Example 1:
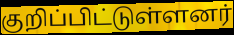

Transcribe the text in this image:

குறிப்பிட்டுள்ளனர்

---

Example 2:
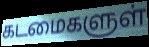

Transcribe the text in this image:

கடமைகளுள்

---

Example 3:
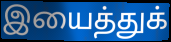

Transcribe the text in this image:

இயைத்துக்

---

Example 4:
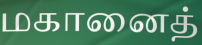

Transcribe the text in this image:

மகானைத்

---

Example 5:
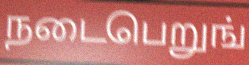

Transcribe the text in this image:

நடைபெறுங்